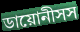
ডায়োনীসস